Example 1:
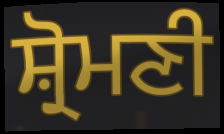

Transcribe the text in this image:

ਸ਼੍ਰੋਮਣੀ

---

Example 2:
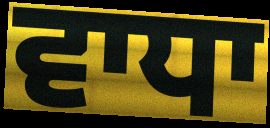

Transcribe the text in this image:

ਵਾਧਾ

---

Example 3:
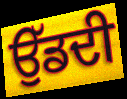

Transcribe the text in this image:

ਉੱਡਦੀ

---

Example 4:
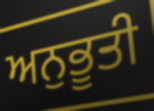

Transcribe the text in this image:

ਅਨੁਭੂਤੀ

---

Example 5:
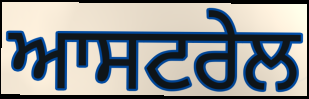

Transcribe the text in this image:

ਆਸਟਰੇਲ